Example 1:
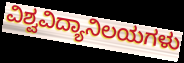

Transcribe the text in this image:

ವಿಶ್ವವಿದ್ಯಾನಿಲಯಗಳು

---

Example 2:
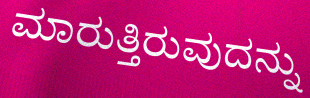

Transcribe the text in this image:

ಮಾರುತ್ತಿರುವುದನ್ನು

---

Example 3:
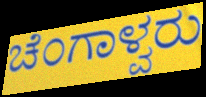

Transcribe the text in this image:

ಚೆಂಗಾಳ್ವರು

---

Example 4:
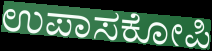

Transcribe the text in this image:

ಉಪಾಸಕೋಪಿ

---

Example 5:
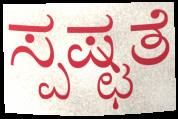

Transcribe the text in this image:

ಸ್ಪಷ್ಟತೆ